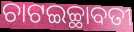
ଚାଟଇଚ୍ଛାବତୀ